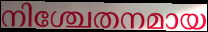
നിശ്ചേതനമായ